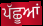
ਪੱਛੂਆਂ